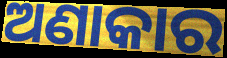
ଅଣାକାର